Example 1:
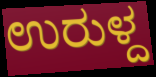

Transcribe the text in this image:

ಉರುಳ್ದ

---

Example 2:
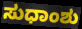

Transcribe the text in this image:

ಸುಧಾಂಶು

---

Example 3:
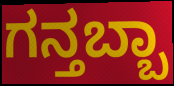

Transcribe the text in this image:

ಗನ್ತಬ್ಬಾ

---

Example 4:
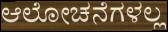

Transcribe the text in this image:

ಆಲೋಚನೆಗಳಲ್ಲ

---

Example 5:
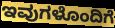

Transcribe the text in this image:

ಇವುಗಳೊಂದಿಗೆ